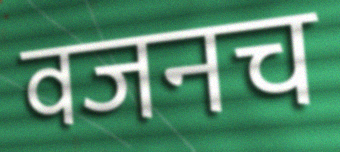
वजनच